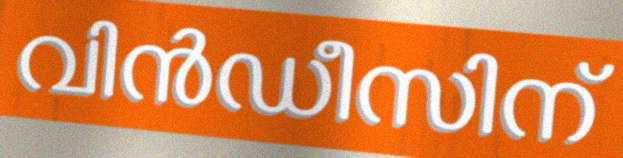
വിൻഡീസിന്